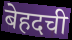
बेहदची